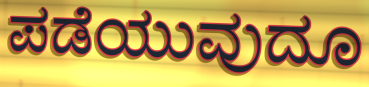
ಪಡೆಯುವುದೂ